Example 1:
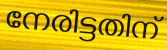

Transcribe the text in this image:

നേരിട്ടതിന്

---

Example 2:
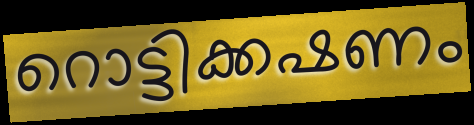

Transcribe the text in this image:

റൊട്ടിക്കഷണം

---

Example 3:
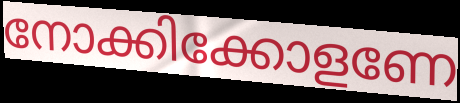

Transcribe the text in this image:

നോക്കിക്കോളണേ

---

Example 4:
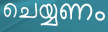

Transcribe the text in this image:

ചെയ്യണം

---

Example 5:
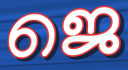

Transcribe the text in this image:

ജെ